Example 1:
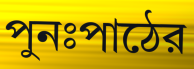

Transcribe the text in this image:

পুনঃপাঠের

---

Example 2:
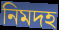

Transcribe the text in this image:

নিমদহ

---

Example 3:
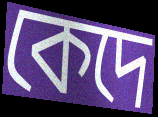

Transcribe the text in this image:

কেদে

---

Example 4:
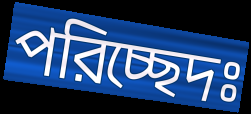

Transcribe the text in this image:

পরিচ্ছেদঃ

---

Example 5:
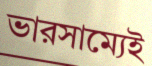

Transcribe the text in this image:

ভারসাম্যেই